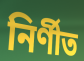
নির্ণীত